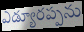
ఎడ్యూరప్పను